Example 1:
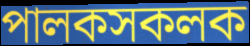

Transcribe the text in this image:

পালকসকলক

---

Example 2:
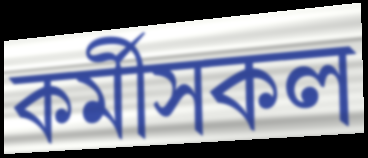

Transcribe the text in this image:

কৰ্মীসকল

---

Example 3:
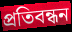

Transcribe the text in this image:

প্ৰতিবন্ধন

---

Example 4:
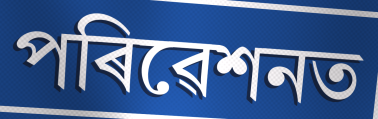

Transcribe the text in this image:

পৰিৱেশনত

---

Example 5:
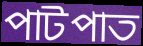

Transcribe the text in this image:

পাটপাত